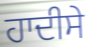
ਹਾਦੀਸੇ